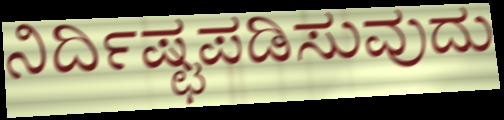
ನಿರ್ದಿಷ್ಟಪಡಿಸುವುದು